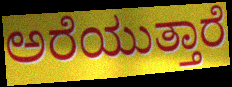
ಅರೆಯುತ್ತಾರೆ